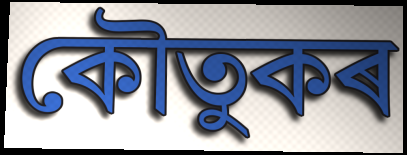
কৌতুকৰ